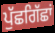
ਪੁੱਛਗਿੱਛਾਂ